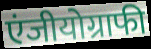
एंजीयोग्राफी